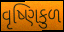
વૃષ્ણિકુળ